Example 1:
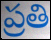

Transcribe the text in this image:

ప్రతి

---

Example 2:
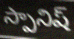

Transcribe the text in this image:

స్పానిష్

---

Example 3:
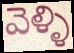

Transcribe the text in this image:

వెళ్ళి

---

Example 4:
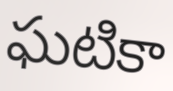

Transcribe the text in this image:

ఘటికా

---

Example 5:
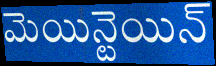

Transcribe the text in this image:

మెయిన్టెయిన్